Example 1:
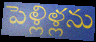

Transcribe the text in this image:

పెళ్లిళ్లను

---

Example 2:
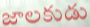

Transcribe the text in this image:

జాలకుడు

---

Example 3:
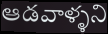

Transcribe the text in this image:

ఆడవాళ్ళని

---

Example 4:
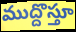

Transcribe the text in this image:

ముద్దొస్తూ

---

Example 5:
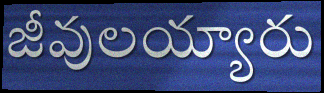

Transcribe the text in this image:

జీవులయ్యారు